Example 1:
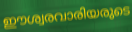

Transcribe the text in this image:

ഈശ്വരവാരിയരുടെ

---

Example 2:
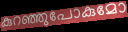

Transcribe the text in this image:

കുറഞ്ഞുപോകുമോ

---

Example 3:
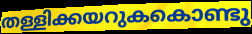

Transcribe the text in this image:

തള്ളിക്കയറുകകൊണ്ടു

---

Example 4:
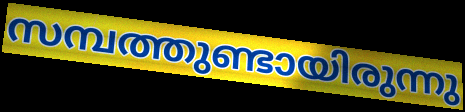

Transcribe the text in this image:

സമ്പത്തുണ്ടായിരുന്നു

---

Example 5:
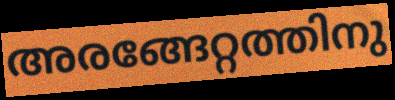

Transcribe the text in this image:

അരങ്ങേറ്റത്തിനു